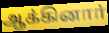
ஆக்கினார்